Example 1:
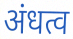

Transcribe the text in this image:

अंधत्व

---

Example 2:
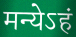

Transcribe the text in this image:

मन्येऽहं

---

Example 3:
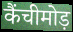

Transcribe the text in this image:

कैंचीमोड़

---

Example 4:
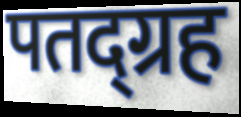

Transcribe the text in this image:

पतद्ग्रह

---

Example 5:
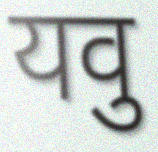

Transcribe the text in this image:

यवु